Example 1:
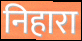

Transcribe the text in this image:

निहारा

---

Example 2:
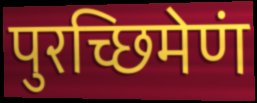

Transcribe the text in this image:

पुरच्छिमेणं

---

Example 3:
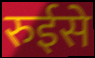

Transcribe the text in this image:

रुईसे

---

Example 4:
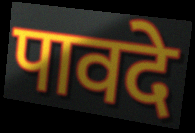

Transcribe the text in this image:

पावदे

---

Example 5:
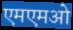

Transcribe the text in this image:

एमएमओ